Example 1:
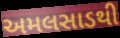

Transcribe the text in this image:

અમલસાડથી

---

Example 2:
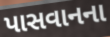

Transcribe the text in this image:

પાસવાનના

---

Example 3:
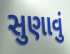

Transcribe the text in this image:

સુણાવું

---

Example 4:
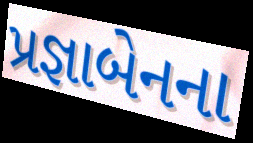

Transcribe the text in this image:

પ્રજ્ઞાબેનના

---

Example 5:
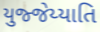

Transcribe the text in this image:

યુજ્જેય્યાતિ